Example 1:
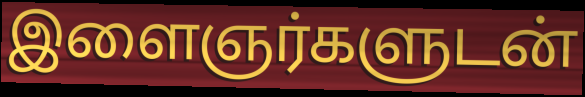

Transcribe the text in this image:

இளைஞர்களுடன்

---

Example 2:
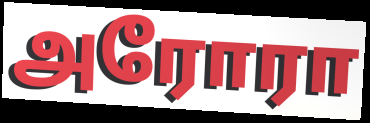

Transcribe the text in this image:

அரோரா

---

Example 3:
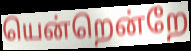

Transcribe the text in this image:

யென்றென்றே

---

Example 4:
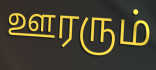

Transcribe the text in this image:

ஊரரும்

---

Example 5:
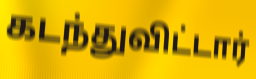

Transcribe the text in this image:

கடந்துவிட்டார்